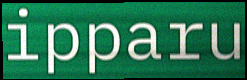
ipparu